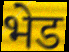
भेड